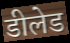
डीलेड